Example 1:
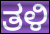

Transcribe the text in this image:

ತಳಿ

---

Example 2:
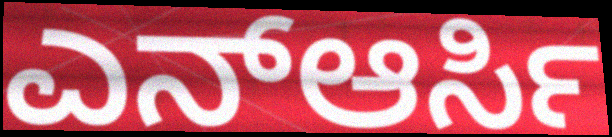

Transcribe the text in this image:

ಎನ್ಆರ್ಸಿ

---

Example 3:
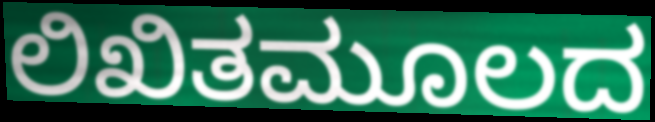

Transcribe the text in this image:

ಲಿಖಿತಮೂಲದ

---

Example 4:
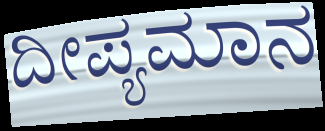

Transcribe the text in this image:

ದೀಪ್ಯಮಾನ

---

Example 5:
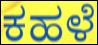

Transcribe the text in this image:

ಕಹಳೆ